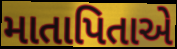
માતાપિતાએ